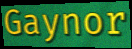
Gaynor